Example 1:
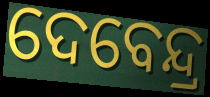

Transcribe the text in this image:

ଦେବେନ୍ଦ୍ର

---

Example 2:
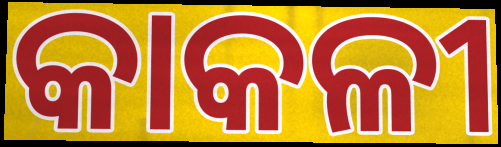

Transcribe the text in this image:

କାକଳୀ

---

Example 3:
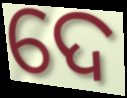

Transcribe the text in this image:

ଦେ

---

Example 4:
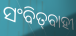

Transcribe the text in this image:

ସଂବିତ୍‌ବାହୀ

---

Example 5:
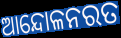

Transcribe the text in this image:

ଆନ୍ଦୋଳନରତ